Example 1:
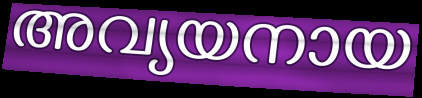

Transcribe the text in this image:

അവ്യയനായ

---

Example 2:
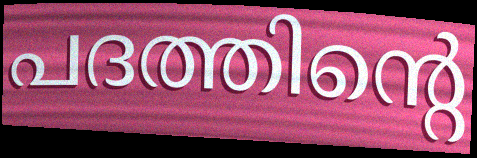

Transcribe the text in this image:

പദത്തിന്റെ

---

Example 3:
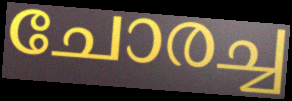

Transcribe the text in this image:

ചോരച്ച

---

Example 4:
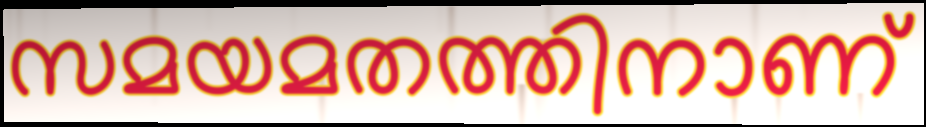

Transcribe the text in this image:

സമയമതത്തിനാണ്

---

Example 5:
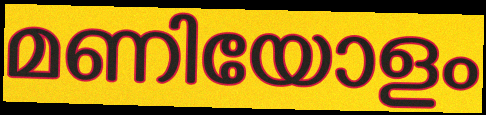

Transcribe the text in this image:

മണിയോളം